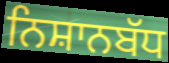
ਨਿਸ਼ਾਨਬੱਧ